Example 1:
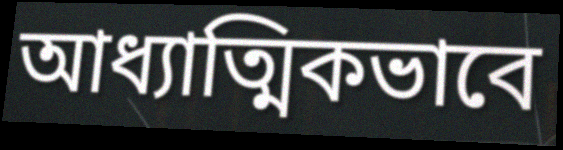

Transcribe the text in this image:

আধ্যাত্মিকভাবে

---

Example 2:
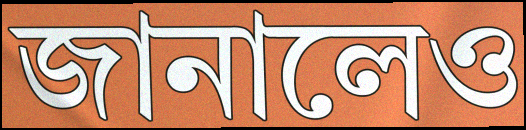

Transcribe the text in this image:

জানালেও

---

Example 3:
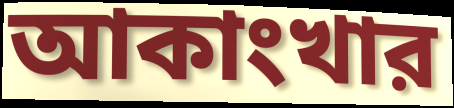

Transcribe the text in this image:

আকাংখার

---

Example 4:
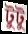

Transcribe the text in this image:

টুটু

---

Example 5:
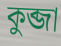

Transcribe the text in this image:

কুব্জা